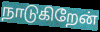
நாடுகிறேன்